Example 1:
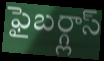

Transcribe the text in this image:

ఫైబర్గ్లాస్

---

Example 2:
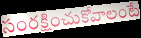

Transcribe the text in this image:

సంరక్షించుకోవాలంటే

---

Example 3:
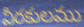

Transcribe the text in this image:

వీరకులము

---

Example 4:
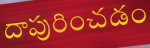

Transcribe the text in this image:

దాపురించడం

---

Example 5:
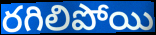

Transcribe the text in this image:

రగిలిపోయి